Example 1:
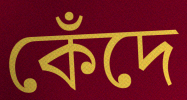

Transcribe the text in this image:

কেঁদে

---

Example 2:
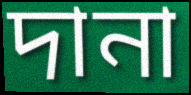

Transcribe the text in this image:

দানা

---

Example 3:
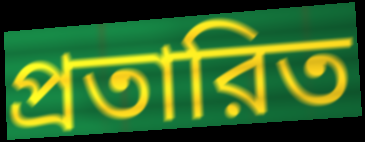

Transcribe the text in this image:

প্রতারিত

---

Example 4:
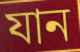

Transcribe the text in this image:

যান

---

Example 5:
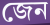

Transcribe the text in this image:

জেন